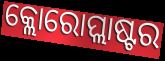
କ୍ଲୋରୋପ୍ଲାଷ୍ଟର